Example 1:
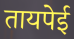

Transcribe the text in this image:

तायपेई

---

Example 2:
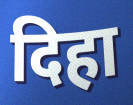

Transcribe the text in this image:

दिहा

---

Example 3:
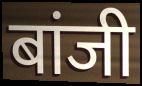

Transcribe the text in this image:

बांजी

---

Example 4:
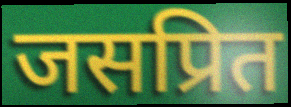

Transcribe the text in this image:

जसप्रित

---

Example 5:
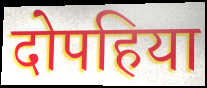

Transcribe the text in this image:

दोपहिया